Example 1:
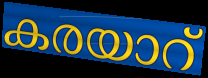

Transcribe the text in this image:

കരയാറ്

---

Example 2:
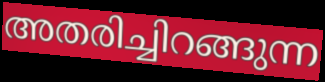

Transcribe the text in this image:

അതരിച്ചിറങ്ങുന്ന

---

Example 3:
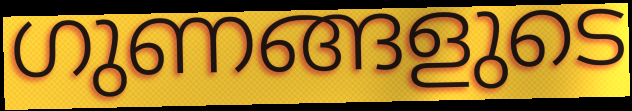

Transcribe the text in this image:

ഗുണങ്ങളുടെ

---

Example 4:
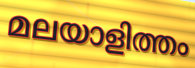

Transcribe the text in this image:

മലയാളിത്തം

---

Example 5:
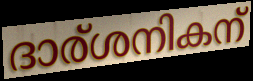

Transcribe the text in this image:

ദാര്ശനികന്